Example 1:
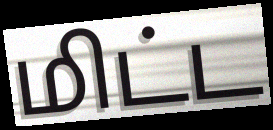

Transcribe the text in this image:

மிட்ட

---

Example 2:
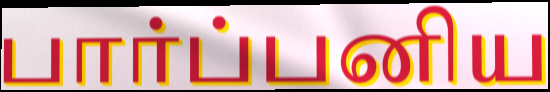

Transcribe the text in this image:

பார்ப்பனிய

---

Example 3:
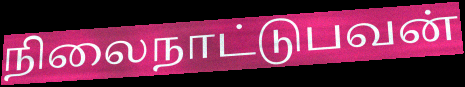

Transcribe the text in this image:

நிலைநாட்டுபவன்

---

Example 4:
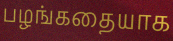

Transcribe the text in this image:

பழங்கதையாக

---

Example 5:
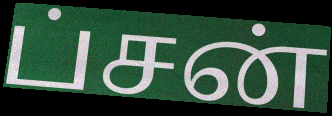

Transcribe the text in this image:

ப்சன்